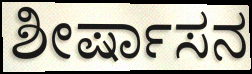
ಶೀರ್ಷಾಸನ